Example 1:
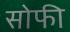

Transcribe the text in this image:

सोफी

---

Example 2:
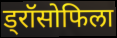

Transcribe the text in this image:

ड्रॉसोफिला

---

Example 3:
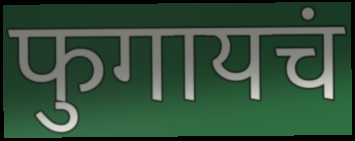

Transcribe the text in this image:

फुगायचं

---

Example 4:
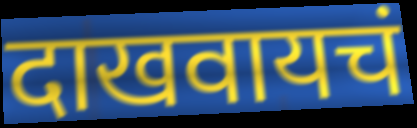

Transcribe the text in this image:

दाखवायचं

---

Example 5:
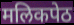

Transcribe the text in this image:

मलिकपेठ